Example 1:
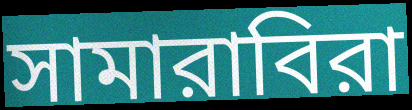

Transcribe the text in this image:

সামারাবিরা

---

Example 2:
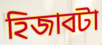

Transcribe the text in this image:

হিজাবটা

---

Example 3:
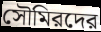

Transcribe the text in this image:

সৌমিরদের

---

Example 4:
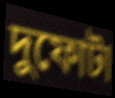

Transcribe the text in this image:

দুফোটা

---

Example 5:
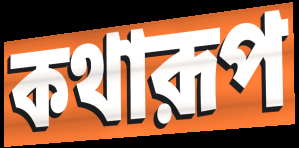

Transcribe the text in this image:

কথারূপ